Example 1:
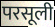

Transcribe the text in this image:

परसूली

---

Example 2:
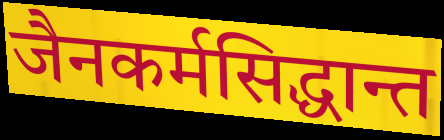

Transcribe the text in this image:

जैनकर्मसिद्धान्त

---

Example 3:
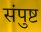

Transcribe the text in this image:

संपुष्ट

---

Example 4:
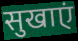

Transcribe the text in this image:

सुखाएं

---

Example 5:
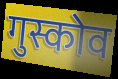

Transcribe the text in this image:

गुस्कोव